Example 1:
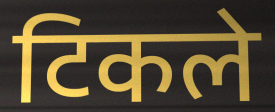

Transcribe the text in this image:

टिकले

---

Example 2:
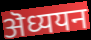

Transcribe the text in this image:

ऄध्ययन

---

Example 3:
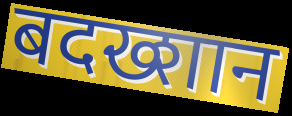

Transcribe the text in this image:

बदख्शान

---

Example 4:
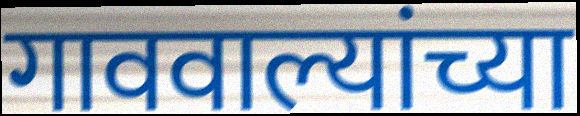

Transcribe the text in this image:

गाववाल्यांच्या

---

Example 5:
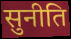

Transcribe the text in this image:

सुनीति